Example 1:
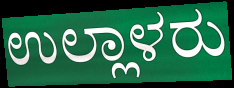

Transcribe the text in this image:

ಉಲ್ಲಾಳರು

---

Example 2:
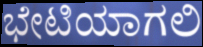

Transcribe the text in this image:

ಭೇಟಿಯಾಗಲಿ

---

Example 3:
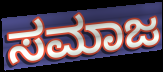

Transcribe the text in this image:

ಸಮಾಜ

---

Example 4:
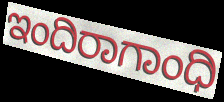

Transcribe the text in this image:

ಇಂದಿರಾಗಾಂಧಿ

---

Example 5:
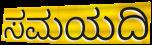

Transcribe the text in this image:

ಸಮಯದಿ